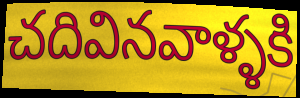
చదివినవాళ్ళకి